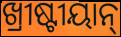
ଖ୍ରୀଷ୍ଟୀୟାନ୍